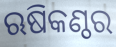
ଋଷିକଣ୍ଠର